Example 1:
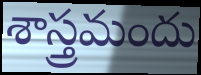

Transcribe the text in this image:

శాస్త్రమందు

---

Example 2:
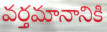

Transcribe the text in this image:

వర్తమానానికి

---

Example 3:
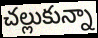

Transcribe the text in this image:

చల్లుకున్నా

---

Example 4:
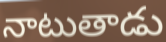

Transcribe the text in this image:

నాటుతాడు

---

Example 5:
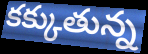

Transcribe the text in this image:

కక్కుతున్న